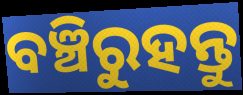
ବଞ୍ଚିରୁହନ୍ତୁ